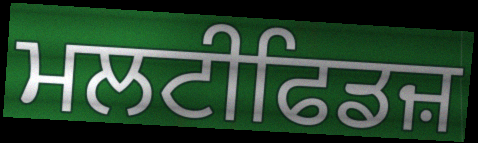
ਮਲਟੀਫਿਡਜ਼